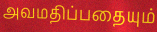
அவமதிப்பதையும்